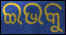
ଇଭକୁ